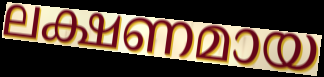
ലക്ഷണമായ